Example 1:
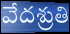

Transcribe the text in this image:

వేదశ్రుతి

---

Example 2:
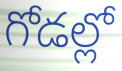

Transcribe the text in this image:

గోడల్లో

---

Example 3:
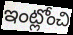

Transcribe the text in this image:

ఇంట్లోంచి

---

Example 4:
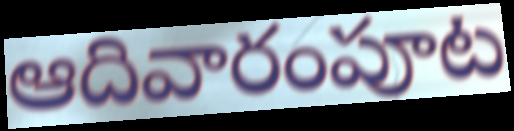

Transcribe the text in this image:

ఆదివారంపూట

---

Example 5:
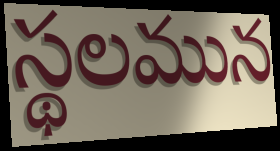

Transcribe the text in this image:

స్థలమున